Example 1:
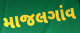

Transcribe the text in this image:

માજલગાંવ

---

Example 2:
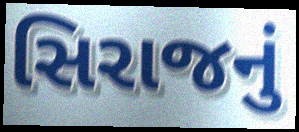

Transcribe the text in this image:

સિરાજનું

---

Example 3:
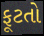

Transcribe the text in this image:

ફૂટતો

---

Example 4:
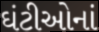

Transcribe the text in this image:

ઘંટીઓનાં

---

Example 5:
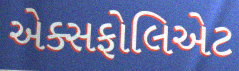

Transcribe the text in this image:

એક્સફોલિએટ